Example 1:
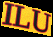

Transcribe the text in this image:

ILU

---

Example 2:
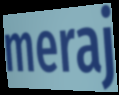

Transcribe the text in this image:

meraj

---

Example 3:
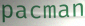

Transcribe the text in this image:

pacman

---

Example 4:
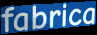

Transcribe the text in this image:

fabrica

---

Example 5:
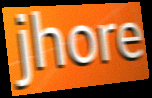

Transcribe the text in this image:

jhore